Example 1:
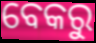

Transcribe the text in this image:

ବେକରୁ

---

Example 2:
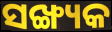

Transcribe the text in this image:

ସଙ୍ଖ୍ୟକ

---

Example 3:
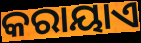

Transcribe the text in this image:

କରାୟାଏ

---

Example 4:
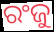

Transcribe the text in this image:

ରଂଜୁ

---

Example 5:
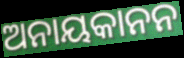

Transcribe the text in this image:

ଅନାୟକାନନ